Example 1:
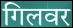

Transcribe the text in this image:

गिलवर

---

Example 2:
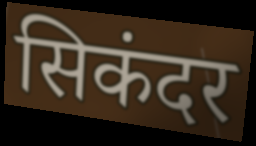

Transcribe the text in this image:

सिकंदर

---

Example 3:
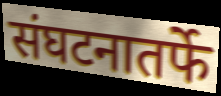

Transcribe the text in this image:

संघटनातर्फे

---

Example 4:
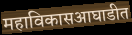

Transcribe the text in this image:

महाविकासआघाडीत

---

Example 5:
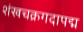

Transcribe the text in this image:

शंखचक्रगदापद्म